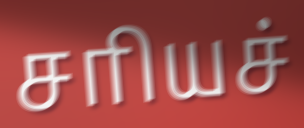
சரியச்